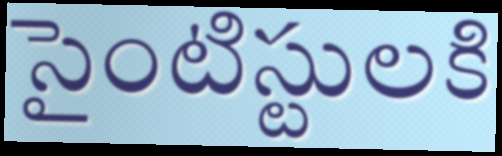
సైంటిస్టులకి